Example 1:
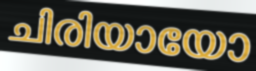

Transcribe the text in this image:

ചിരിയായോ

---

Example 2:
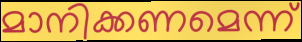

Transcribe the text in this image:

മാനിക്കണമെന്ന്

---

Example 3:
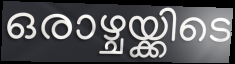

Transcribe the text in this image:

ഒരാഴ്ചയ്ക്കിടെ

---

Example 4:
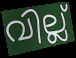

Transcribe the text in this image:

വില്ല്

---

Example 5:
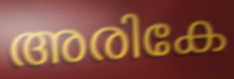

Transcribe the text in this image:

അരികേ